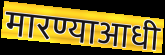
मारण्याआधी